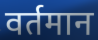
वर्तमान